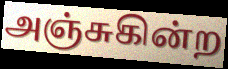
அஞ்சுகின்ற